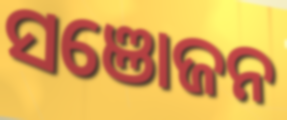
ସଞୋଜନ